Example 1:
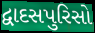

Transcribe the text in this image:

દ્વાદસપુરિસો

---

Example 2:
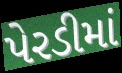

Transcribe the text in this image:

પેરડીમાં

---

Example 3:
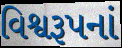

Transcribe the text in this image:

વિશ્વરૂપનાં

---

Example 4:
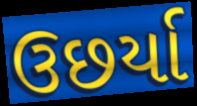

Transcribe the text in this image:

ઉછર્યા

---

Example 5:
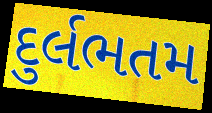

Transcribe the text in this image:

દુર્લભતમ